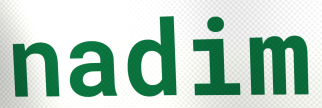
nadim